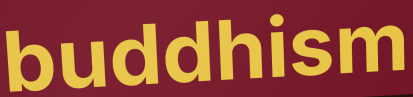
buddhism